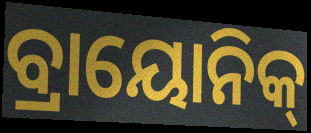
ବ୍ରାୟୋନିକ୍